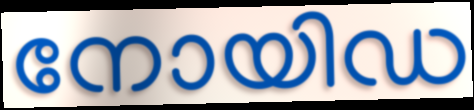
നോയിഡ